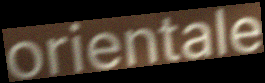
orientale